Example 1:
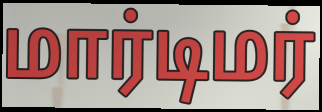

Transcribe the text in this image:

மார்டிமர்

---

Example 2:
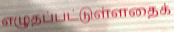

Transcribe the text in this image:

எழுதப்பட்டுள்ளதைக்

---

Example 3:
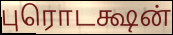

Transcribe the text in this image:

புரொடக்ஷன்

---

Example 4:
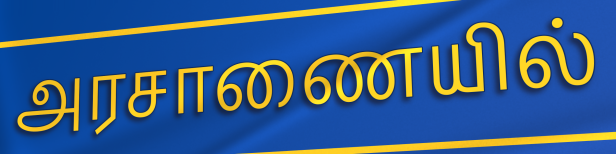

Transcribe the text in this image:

அரசாணையில்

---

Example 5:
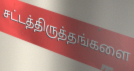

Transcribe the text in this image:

சட்டத்திருத்தங்களை